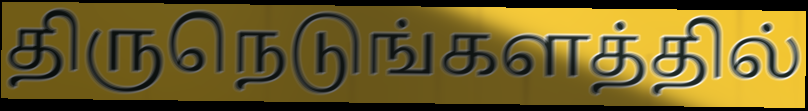
திருநெடுங்களத்தில்